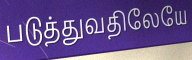
படுத்துவதிலேயே